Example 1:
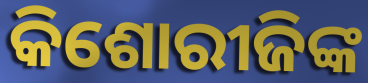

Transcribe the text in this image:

କିଶୋରୀଜିଙ୍କ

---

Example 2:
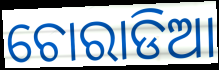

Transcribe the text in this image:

ଚୋରାଡିଆ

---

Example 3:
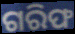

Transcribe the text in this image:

ଗରିଫ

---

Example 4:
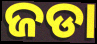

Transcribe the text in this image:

ଜଡା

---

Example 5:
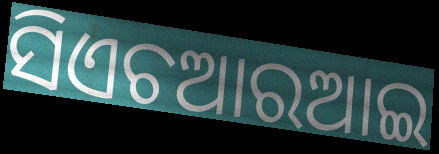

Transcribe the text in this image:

ସିଏଚଆରଆଇ